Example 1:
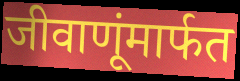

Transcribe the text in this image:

जीवाणूंमार्फत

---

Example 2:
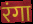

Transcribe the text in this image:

रंगा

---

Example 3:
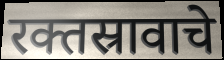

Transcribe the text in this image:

रक्तस्रावाचे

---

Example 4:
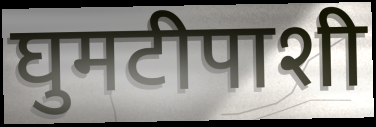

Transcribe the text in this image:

घुमटीपाशी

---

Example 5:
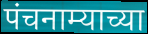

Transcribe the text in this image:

पंचनाम्याच्या